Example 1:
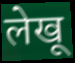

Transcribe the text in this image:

लेखू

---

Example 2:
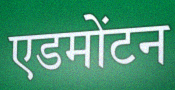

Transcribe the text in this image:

एडमोंटन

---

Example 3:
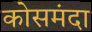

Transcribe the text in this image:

कोसमंदा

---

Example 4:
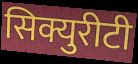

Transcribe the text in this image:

सिक्युरीटी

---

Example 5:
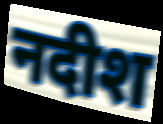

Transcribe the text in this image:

नदीश